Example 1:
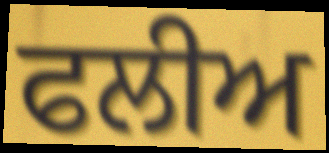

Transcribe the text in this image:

ਫਲੀਅ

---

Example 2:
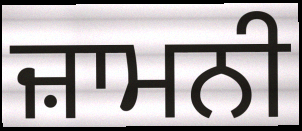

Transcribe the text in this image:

ਜ਼ਾਮਨੀ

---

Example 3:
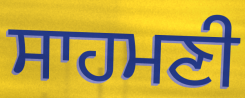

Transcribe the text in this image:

ਸਾਹਮਣੀ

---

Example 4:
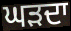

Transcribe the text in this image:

ਘੜਦਾ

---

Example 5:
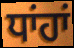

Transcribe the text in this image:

ਧਾਂਹਾਂ